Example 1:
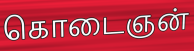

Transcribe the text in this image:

கொடைஞன்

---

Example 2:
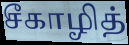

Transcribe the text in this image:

சீகாழித்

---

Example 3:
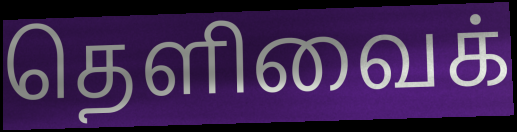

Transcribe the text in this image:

தெளிவைக்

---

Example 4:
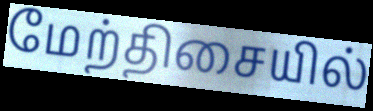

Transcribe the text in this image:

மேற்திசையில்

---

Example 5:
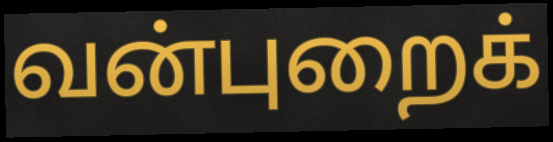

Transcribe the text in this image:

வன்புறைக்